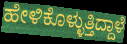
ಹೇಳಿಕೊಳ್ಳುತ್ತಿದ್ದಾಳೆ